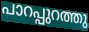
പാറപ്പുറത്തു